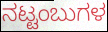
ನಟ್ಟಂಬುಗಳ